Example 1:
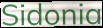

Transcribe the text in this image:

Sidonia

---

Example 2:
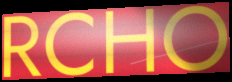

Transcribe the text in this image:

RCHO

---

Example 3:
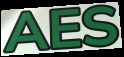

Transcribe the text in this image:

AES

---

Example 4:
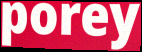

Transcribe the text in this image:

porey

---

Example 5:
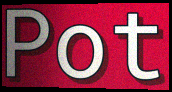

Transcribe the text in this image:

Pot